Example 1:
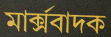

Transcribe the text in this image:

মাৰ্ক্সবাদক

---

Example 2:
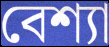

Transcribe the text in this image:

বেশ্যা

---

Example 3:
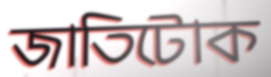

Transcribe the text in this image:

জাতিটোক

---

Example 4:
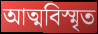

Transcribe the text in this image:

আত্মবিস্মৃত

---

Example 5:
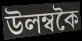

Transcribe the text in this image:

উলম্বকৈ